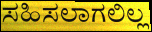
ಸಹಿಸಲಾಗಲಿಲ್ಲ